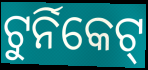
ଟୁର୍ନିକେଟ୍